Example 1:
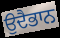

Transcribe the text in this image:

ਉਦੈਭਾਨ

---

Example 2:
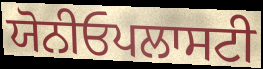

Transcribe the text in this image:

ਯੋਨੀਓਪਲਾਸਟੀ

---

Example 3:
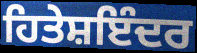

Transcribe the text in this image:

ਹਿਤੇਸ਼ਇੰਦਰ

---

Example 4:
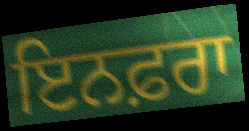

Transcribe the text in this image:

ਇਨਫ਼ਰਾ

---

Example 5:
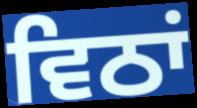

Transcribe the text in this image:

ਵਿਠਾਂ